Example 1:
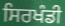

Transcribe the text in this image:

ਸਿਰਖੰਡੀ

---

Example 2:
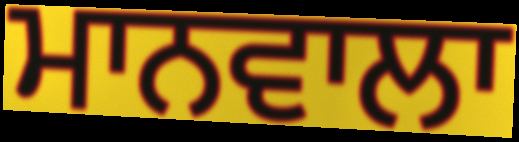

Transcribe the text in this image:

ਮਾਨਵਾਲਾ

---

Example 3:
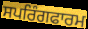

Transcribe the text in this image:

ਸਪਰਿੰਗਫਾਰਮ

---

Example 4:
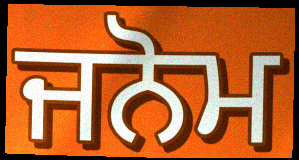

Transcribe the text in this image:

ਜਨੋਮ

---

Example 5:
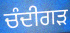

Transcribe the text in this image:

ਚੰਦੀਗੜ